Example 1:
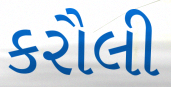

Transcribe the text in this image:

કરૌલી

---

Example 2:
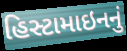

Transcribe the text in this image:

હિસ્ટામાઇનનું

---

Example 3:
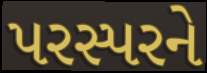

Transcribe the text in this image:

પરસ્પરને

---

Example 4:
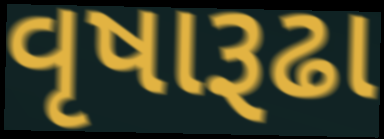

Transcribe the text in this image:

વૃષારૂઢા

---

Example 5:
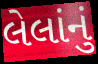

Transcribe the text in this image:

લેલાંનું